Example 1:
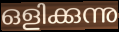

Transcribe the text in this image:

ഒളിക്കുന്നു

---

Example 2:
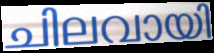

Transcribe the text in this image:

ചിലവായി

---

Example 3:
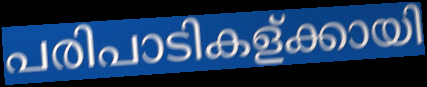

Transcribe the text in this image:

പരിപാടികള്ക്കായി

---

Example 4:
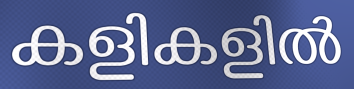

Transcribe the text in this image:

കളികളിൽ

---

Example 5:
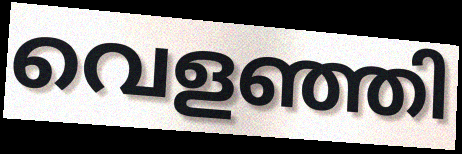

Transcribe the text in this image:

വെളഞ്ഞി